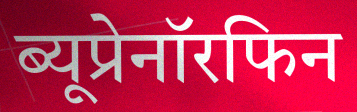
ब्यूप्रेनॉरफिन